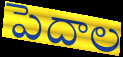
పెదాల